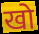
खो